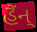
હૈંન્